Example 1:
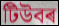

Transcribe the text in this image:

টিউবৰ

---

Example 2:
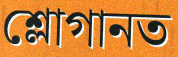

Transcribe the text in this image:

শ্লোগানত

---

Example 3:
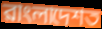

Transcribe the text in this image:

ৱাংলাদেশত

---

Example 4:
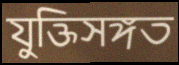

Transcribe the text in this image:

যুক্তিসঙ্গত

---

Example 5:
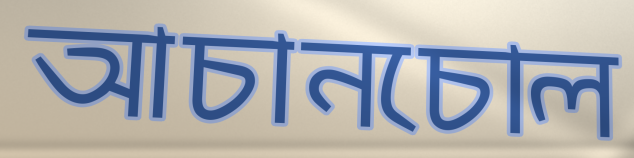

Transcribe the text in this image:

আচানচোল